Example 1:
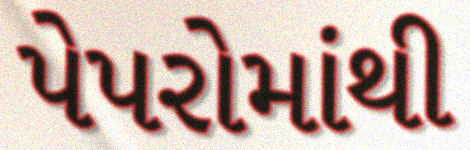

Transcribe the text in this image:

પેપરોમાંથી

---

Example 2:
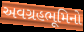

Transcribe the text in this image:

અવગ્રહભૂમિનો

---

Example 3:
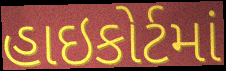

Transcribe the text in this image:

હાઇકોર્ટમાં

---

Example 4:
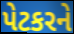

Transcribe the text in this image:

પેટકરને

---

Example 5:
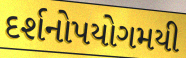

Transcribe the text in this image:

દર્શનોપયોગમયી